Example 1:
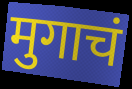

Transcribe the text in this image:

मुगाचं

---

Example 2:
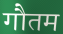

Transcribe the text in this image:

गौतम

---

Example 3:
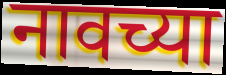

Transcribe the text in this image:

नावच्या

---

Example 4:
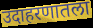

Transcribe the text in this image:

उदाहरणातला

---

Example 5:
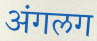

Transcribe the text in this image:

अंगलग